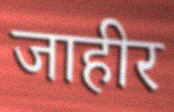
जाहीर